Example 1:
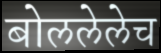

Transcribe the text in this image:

बोललेलेच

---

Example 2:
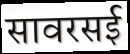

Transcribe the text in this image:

सावरसई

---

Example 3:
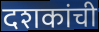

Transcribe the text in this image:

दशकांची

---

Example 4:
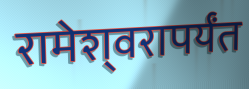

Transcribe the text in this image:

रामेश्वरापर्यंत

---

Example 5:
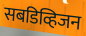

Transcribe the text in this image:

सबडिव्हिजन